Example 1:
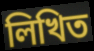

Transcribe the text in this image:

লিখিত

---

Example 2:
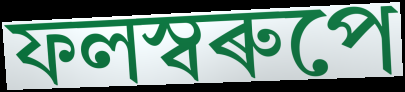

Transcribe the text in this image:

ফলস্বৰুপে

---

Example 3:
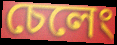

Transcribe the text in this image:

চেলেং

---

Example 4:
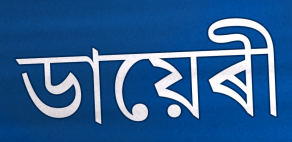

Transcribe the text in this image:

ডায়েৰী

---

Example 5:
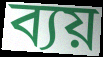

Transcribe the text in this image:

ব্যয়